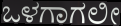
ಒಳಗಾಗಲೀ